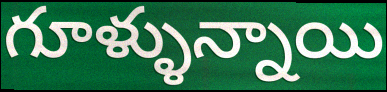
గూళ్ళున్నాయి